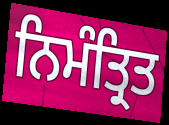
ਨਿਮੰਤ੍ਰਿਤ